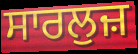
ਸਾਰਲੁਜ਼